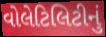
વોલેટિલિટીનું